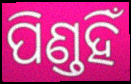
ପିଣ୍ଡହିଁ